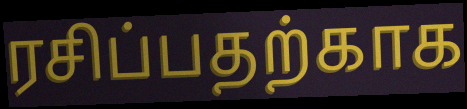
ரசிப்பதற்காக